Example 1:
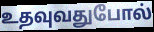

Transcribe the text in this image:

உதவுவதுபோல்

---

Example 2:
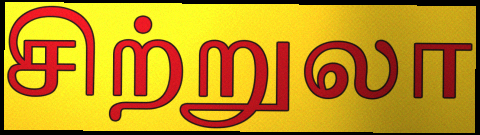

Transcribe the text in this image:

சிற்றுலா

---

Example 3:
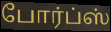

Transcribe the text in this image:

போர்ப்ஸ்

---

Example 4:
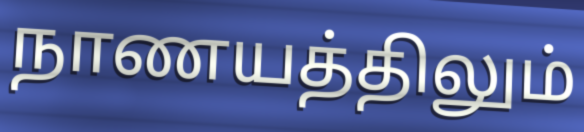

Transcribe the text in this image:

நாணயத்திலும்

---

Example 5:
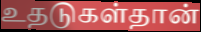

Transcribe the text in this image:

உதடுகள்தான்